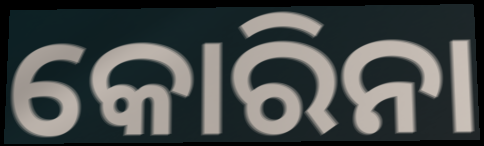
କୋରିନା